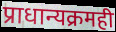
प्राधान्यक्रमही